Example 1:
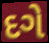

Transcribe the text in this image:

દગે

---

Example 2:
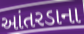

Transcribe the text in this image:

આંતરડાના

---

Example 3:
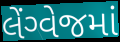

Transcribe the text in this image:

લેંગ્વેજમાં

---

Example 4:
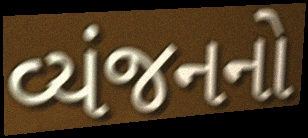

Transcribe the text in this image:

વ્યંજનનો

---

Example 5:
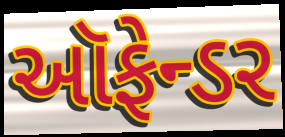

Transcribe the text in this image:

ઑફેન્ડર